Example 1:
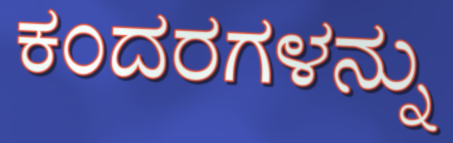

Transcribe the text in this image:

ಕಂದರಗಳನ್ನು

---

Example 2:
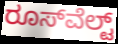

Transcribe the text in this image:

ರೂಸ್‍ವೆಲ್ಟ್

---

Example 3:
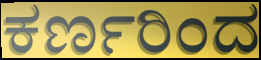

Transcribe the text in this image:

ಕರ್ಣರಿಂದ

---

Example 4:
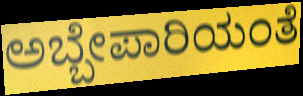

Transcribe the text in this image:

ಅಬ್ಬೇಪಾರಿಯಂತೆ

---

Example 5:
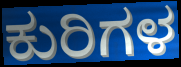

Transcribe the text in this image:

ಕುರಿಗಳ